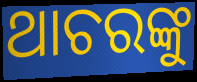
ଥାଚରଙ୍କୁ